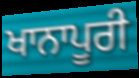
ਖਾਨਾਪੂਰੀ